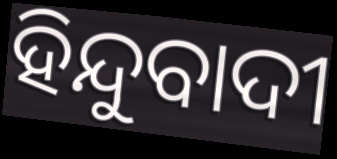
ହିନ୍ଦୁବାଦୀ